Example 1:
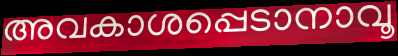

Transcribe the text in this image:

അവകാശപ്പെടാനാവൂ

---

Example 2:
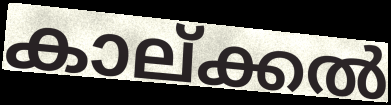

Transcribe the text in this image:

കാല്ക്കൽ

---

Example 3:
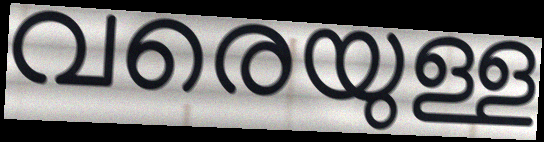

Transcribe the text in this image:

വരെയുള്ള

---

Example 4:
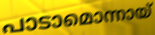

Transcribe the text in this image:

പാടാമൊന്നായ്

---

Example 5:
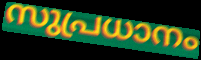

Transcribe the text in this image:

സുപ്രധാനം